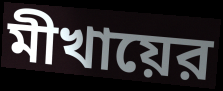
মীখায়ের